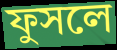
ফুসলে